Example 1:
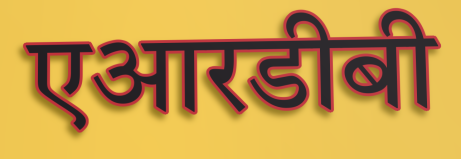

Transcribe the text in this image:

एआरडीबी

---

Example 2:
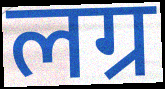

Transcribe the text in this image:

लग्र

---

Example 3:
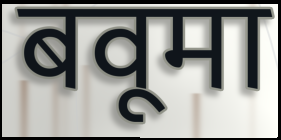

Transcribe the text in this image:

बवूमा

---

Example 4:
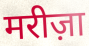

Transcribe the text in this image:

मरीज़ा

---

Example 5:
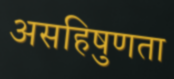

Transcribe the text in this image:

असहिषुणता